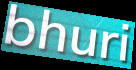
bhuri